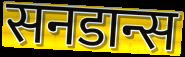
सनडान्स